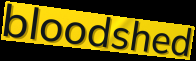
bloodshed